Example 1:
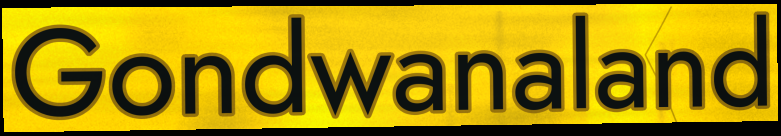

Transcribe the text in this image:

Gondwanaland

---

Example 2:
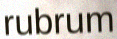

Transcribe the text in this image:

rubrum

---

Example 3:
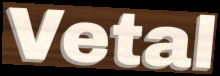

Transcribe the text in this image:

Vetal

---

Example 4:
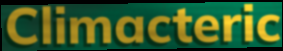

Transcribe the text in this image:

Climacteric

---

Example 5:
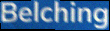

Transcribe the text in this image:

Belching